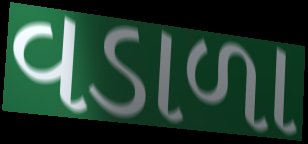
વડાળા